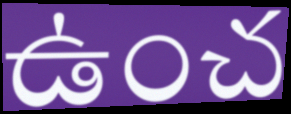
ఉంచ